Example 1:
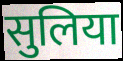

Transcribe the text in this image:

सुलिया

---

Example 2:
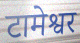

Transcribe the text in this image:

टामेश्वर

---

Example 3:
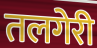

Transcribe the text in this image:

तलगेरी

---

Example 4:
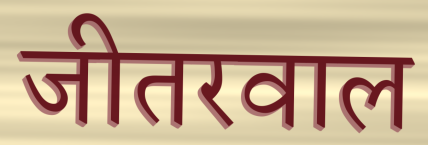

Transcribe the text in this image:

जीतरवाल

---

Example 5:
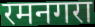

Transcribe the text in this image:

रमनगरा